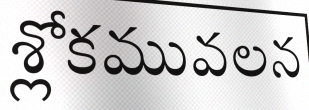
శ్లోకమువలన